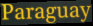
Paraguay